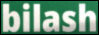
bilash